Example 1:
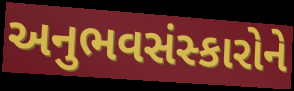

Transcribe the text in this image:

અનુભવસંસ્કારોને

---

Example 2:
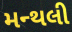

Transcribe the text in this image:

મન્થલી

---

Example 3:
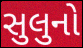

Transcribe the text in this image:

સુલુનો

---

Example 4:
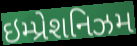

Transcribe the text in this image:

ઇમ્પ્રેશનિઝમ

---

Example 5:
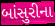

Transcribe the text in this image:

બાંસુરીના